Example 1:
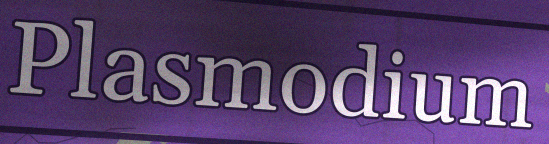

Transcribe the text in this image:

Plasmodium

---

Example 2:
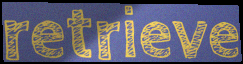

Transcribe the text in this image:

retrieve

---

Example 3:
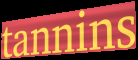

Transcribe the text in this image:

tannins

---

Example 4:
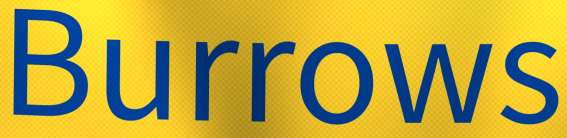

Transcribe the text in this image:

Burrows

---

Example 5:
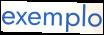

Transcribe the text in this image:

exemplo